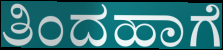
ತಿಂದಹಾಗೆ